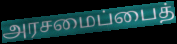
அரசமைப்பைத்